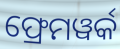
ଫ୍ରେମୱର୍କ